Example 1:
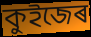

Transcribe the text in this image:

কুইজেৰ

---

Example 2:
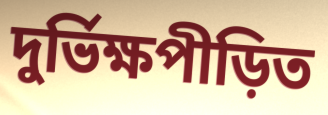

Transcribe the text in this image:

দুৰ্ভিক্ষপীড়িত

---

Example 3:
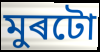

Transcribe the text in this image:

মুৰটো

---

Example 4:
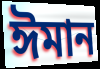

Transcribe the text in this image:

ঈমান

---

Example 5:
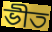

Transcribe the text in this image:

ভীত